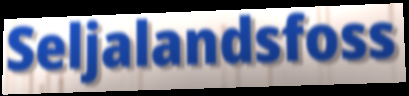
Seljalandsfoss